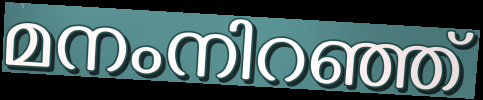
മനംനിറഞ്ഞ്